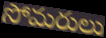
సోమరులు